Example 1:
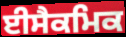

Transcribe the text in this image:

ਈਸੈਕਮਿਕ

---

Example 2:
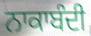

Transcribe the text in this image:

ਨਾਕਾਬੰਦੀ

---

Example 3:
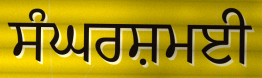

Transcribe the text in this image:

ਸੰਘਰਸ਼ਮਈ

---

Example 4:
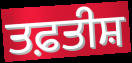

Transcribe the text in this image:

ਤਫ਼ਤੀਸ਼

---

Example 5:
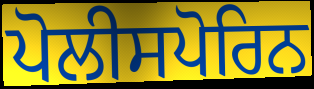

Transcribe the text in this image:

ਪੋਲੀਸਪੋਰਿਨ